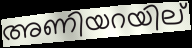
അണിയറയില്